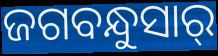
ଜଗବନ୍ଧୁସାର୍